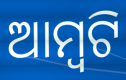
ଆମ୍ୱଟି